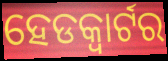
ହେଡକ୍ୱାର୍ଟର